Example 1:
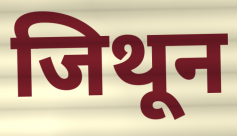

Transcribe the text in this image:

जिथून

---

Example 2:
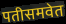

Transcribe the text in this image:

पतीसमवेत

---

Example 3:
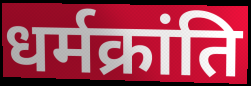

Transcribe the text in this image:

धर्मक्रांति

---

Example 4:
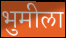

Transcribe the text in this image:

भुमीला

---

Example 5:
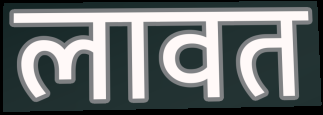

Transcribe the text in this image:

लावत